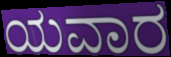
ಯವಾರ